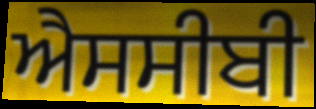
ਐਸਸੀਬੀ